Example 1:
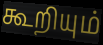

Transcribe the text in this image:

கூறியும்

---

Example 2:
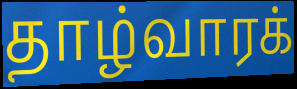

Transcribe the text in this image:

தாழ்வாரக்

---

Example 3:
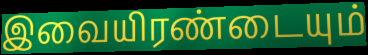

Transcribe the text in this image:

இவையிரண்டையும்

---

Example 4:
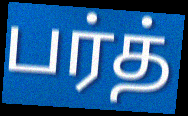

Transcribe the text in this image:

பர்த்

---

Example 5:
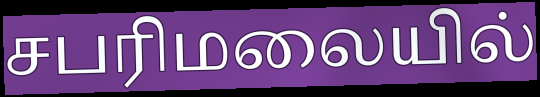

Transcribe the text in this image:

சபரிமலையில்